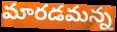
మారడమన్న